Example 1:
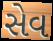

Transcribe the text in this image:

સેવ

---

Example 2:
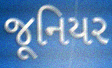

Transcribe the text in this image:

જૂનિયર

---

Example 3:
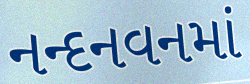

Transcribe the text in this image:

નન્દનવનમાં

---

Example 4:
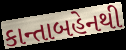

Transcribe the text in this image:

કાન્તાબહેનથી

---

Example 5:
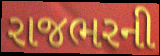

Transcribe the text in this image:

રાજભરની